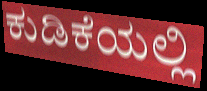
ಕುಡಿಕೆಯಲ್ಲಿ